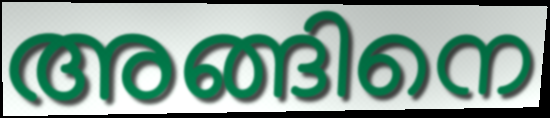
അങ്ങിനെ